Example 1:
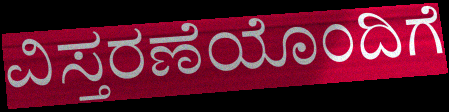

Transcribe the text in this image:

ವಿಸ್ತರಣೆಯೊಂದಿಗೆ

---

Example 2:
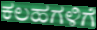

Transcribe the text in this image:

ಕಲಹಗಳಿಗೆ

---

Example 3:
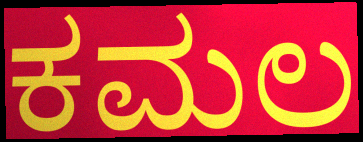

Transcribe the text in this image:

ಕಮಲ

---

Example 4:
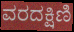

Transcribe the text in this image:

ವರದಕ್ಷಿಣಿ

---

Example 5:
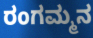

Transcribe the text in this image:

ರಂಗಮ್ಮನ